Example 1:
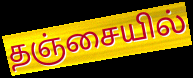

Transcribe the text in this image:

தஞ்சையில்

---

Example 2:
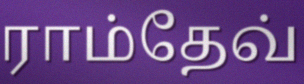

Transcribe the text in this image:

ராம்தேவ்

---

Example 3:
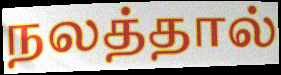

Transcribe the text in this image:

நலத்தால்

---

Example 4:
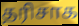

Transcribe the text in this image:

தரிசாக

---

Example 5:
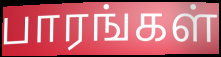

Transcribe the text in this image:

பாரங்கள்